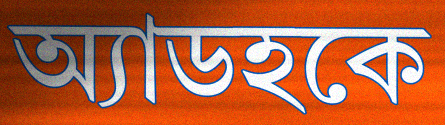
অ্যাডহকে